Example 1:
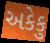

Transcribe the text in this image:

અકેકુ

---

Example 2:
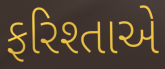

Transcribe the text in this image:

ફરિશ્તાએ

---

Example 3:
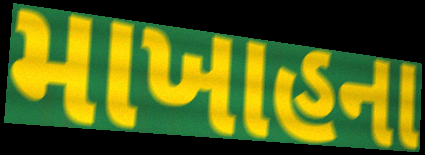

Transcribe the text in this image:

માખાહના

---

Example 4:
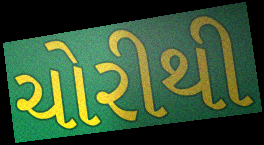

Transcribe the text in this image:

ચોરીથી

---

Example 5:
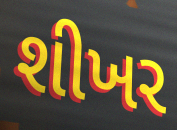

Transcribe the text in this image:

શીખર